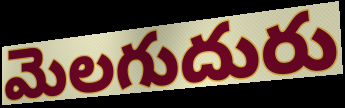
మెలగుదురు